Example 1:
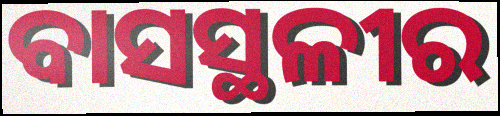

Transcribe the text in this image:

ବାସସ୍ଥଳୀର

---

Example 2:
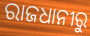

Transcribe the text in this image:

ରାଜଧାନୀରୁ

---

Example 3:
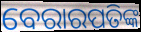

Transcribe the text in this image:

ବେରାରପତିଙ୍କ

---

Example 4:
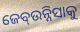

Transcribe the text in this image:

ଜେବ୍ଉନ୍ନିସାକୁ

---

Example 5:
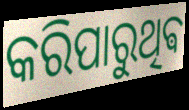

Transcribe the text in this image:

କରିପାରୁଥିଵ